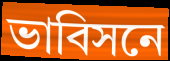
ভাবিসনে